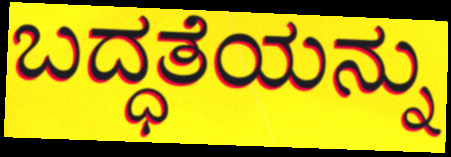
ಬದ್ಧತೆಯನ್ನು